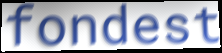
fondest